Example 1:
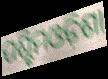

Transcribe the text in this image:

ପଶ୍ଚିମଓଡ଼ିଶା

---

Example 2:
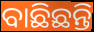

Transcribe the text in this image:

ବାଛିଛନ୍ତି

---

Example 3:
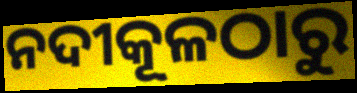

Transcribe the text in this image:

ନଦୀକୂଳଠାରୁ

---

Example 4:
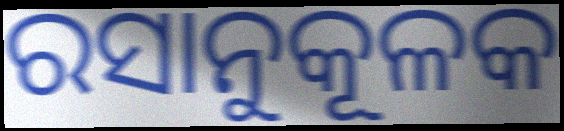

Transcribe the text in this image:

ରସାନୁକୂଳକ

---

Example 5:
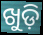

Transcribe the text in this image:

ଖୁଡ଼ି